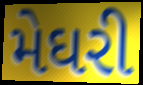
મેઘરી